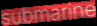
submarine